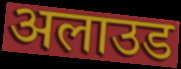
अलाउड